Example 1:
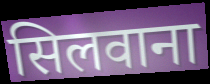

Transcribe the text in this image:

सिलवाना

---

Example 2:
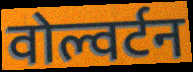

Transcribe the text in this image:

वोल्वर्टन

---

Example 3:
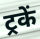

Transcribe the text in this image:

ट्रकें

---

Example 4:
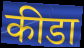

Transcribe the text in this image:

कीडा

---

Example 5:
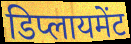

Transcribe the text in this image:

डिप्लायमेंट